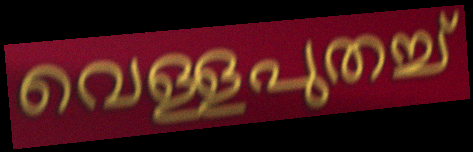
വെള്ളപുതച്ച്